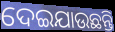
ଦେଇଯାଉଛନ୍ତି